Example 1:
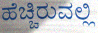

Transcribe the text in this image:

ಹೆಚ್ಚಿರುವಲ್ಲಿ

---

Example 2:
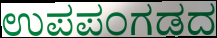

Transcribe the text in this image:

ಉಪಪಂಗಡದ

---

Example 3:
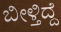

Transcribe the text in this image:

ಬೀಳ್ತಿದ್ದೆ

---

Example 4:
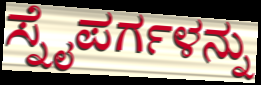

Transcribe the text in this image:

ಸ್ನೈಪರ್ಗಳನ್ನು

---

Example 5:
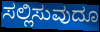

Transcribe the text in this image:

ಸಲ್ಲಿಸುವುದೂ